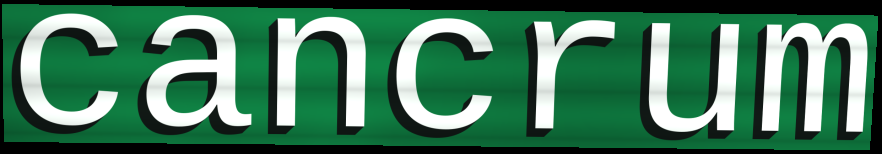
cancrum